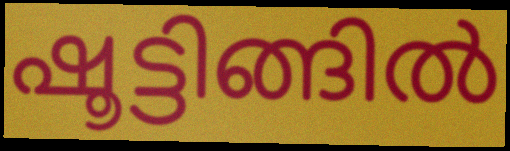
ഷൂട്ടിങ്ങിൽ